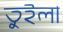
তুইলা